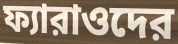
ফ্যারাওদের